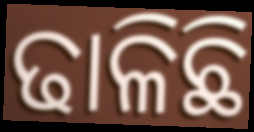
ଢାଳିଛି